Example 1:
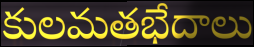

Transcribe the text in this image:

కులమతభేదాలు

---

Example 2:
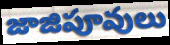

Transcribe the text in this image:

జాజిపూవులు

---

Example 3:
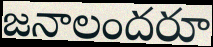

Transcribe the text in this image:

జనాలందరూ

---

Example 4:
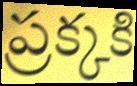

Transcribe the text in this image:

ప్రక్కకి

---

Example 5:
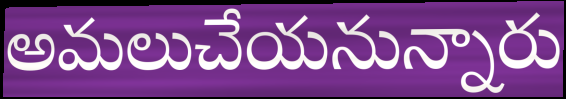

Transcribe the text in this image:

అమలుచేయనున్నారు